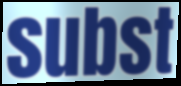
subst